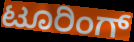
ಟೂರಿಂಗ್